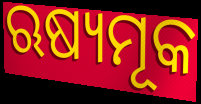
ଋଷ୍ୟମୂକ